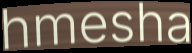
hmesha